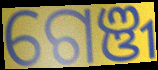
ଗେଞ୍ଜ